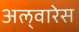
अल्वारेस